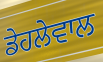
ਡੇਹਲੇਵਾਲ